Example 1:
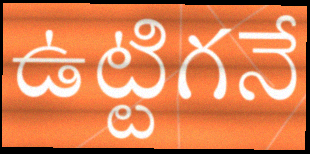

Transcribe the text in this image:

ఉట్టిగనే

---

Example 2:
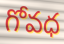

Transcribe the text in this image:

గోవధ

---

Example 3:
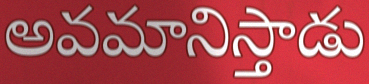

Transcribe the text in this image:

అవమానిస్తాడు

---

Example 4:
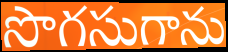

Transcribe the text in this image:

సొగసుగాను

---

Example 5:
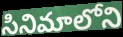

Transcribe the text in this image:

సినిమాలోని